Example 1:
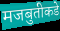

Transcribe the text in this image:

मजबुतीकडे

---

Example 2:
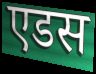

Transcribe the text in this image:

एडस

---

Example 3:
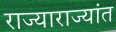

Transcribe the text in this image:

राज्याराज्यांत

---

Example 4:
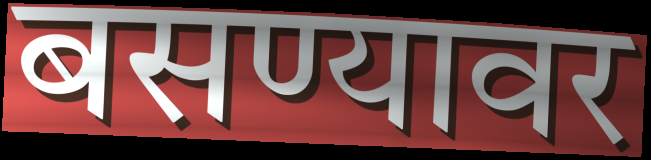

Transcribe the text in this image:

बसण्यावर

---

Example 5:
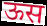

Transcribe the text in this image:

ऊस